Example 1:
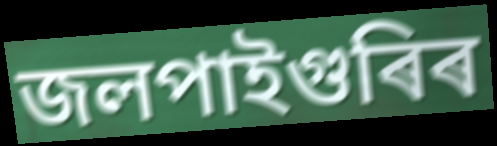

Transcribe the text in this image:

জলপাইগুৰিৰ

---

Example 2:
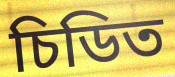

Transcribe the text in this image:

চিডিত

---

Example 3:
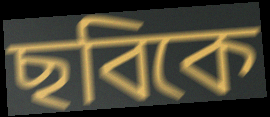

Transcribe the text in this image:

ছবিকে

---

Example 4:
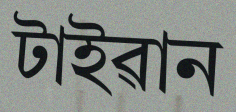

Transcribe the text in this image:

টাইৱান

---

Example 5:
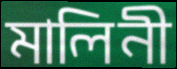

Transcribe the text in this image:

মালিনী